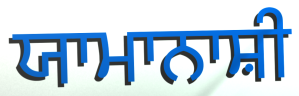
ਯਾਮਾਨਾਸ਼ੀ